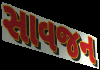
સાવજન